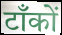
टाँकों